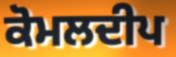
ਕੋਮਲਦੀਪ